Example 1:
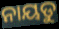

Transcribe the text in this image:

ନାୟଡୁ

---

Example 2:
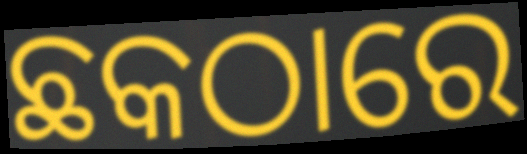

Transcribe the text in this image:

ଛକଠାରେ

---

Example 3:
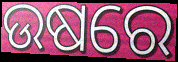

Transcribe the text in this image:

ଉଷରେ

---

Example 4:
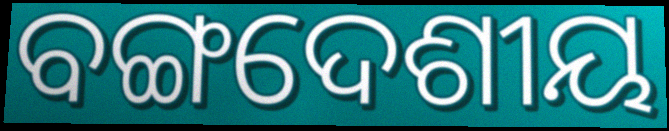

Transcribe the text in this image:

ବଙ୍ଗଦେଶୀୟ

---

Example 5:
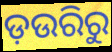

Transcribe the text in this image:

ଡ଼ଉରିରୁ